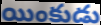
యింకుడు